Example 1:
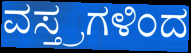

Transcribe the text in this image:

ವಸ್ತ್ರಗಳಿಂದ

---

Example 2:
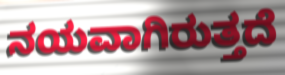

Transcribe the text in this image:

ನಯವಾಗಿರುತ್ತದೆ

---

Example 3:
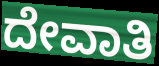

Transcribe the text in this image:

ದೇವಾತಿ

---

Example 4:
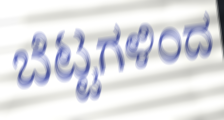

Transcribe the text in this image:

ಬೆಟ್ಟಗಳಿಂದ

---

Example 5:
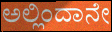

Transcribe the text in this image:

ಅಲ್ಲಿಂದಾನೇ